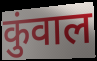
कुंवाल